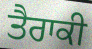
ਤੈਰਾਕੀ